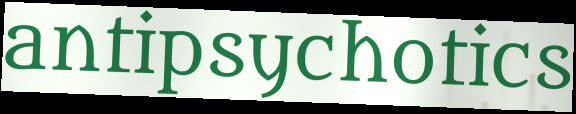
antipsychotics